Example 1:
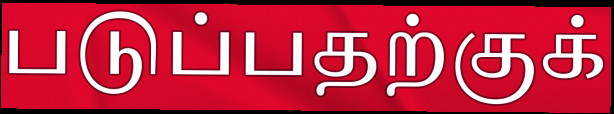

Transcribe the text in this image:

படுப்பதற்குக்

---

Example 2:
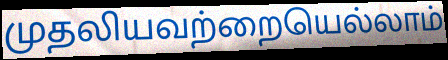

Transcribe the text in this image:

முதலியவற்றையெல்லாம்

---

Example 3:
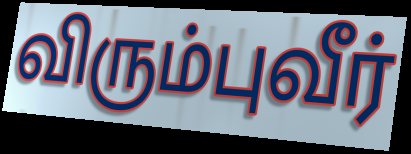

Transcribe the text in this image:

விரும்புவீர்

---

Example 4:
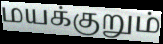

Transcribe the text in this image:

மயக்குறும்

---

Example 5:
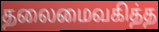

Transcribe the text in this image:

தலைமைவகித்த